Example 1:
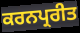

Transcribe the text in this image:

ਕਰਨਪ੍ਰਰੀਤ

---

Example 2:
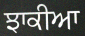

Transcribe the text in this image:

ਝਾਕੀਆ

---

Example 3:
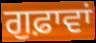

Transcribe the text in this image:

ਗੁਫ਼ਾਵਾਂ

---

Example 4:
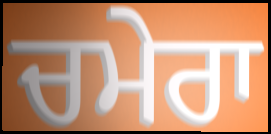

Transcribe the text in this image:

ਚਮੇਰਾ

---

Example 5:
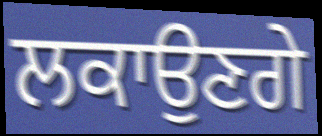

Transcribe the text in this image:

ਲਕਾਉਣਗੇ